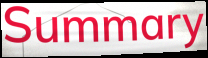
Summary